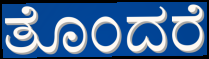
ತೊಂದರೆ